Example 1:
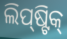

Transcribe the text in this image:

ଲିପ୍‌ଷ୍ଟିକ୍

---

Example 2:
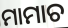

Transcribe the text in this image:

ମାମାଚ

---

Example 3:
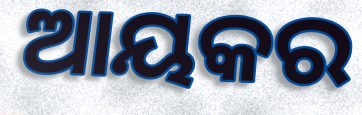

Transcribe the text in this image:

ଆୟକର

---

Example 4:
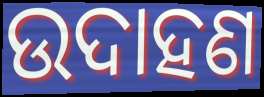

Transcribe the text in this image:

ଉଦାହଣ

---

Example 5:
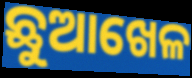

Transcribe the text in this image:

ଛୁଆଖେଳ